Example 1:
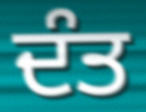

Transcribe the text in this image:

ਦੰਤ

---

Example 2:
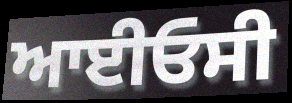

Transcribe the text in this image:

ਆਈਓਸੀ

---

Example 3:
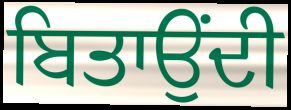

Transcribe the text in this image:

ਬਿਤਾਉਂਦੀ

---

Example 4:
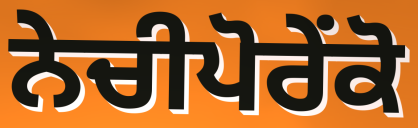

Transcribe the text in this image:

ਨੇਚੀਪੋਰੇਂਕੋ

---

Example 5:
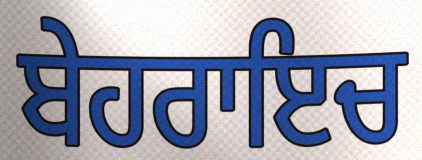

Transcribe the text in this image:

ਬੇਹਰਾਇਚ